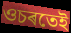
ওচৰতেই